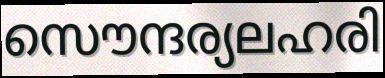
സൌന്ദര്യലഹരി